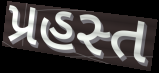
પ્રહસ્ત